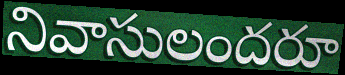
నివాసులందరూ